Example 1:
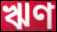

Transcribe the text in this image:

ঋণ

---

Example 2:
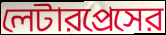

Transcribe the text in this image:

লেটারপ্রেসের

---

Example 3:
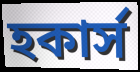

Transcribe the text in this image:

হকার্স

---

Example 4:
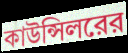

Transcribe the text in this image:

কাউন্সিলরের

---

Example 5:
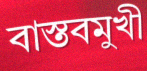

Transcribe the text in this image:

বাস্তবমুখী